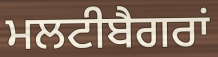
ਮਲਟੀਬੈਗਰਾਂ